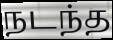
நடந்த